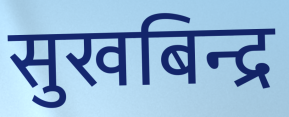
सुखबिन्द्र